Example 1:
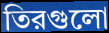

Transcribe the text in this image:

তিরগুলো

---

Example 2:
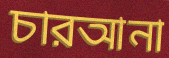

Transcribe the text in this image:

চারআনা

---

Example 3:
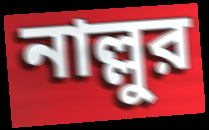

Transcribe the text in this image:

নাল্লুর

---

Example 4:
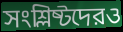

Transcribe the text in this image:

সংশ্লিষ্টদেরও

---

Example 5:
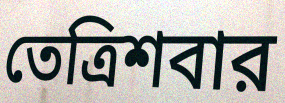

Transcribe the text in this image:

তেত্রিশবার